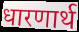
धारणार्थ